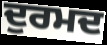
ਦੁਰਮਦ